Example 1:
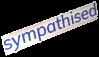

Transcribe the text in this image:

sympathised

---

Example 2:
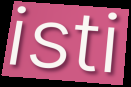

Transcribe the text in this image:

isti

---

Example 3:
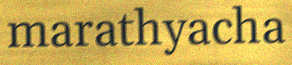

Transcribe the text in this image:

marathyacha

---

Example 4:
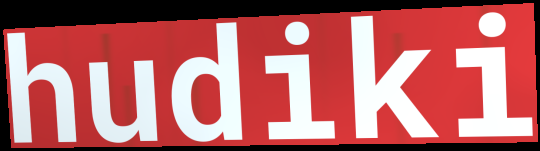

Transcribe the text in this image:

hudiki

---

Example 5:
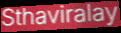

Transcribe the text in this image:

Sthaviralay